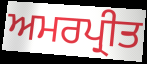
ਅਮਰਪ੍ਰੀਤ